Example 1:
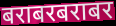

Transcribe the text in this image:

बराबरबराबर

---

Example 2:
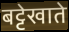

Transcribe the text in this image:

बट्टेखाते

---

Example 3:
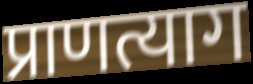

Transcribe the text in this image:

प्राणत्याग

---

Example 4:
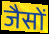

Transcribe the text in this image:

जैसों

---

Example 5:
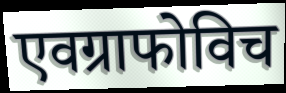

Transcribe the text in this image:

एवग्राफोविच